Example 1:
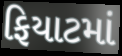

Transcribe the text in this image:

ફિયાટમાં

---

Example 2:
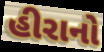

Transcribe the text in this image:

હીરાનો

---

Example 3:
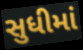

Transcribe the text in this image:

સુધીમાં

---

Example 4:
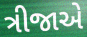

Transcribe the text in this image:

ત્રીજાએ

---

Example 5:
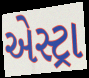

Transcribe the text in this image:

એસ્ટ્રા